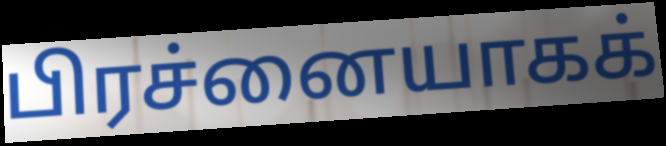
பிரச்னையாகக்